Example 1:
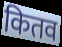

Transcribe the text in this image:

कितव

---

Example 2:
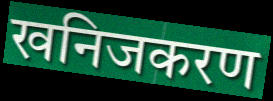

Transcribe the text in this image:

खनिजकरण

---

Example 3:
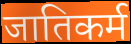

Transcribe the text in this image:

जातिकर्म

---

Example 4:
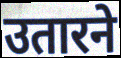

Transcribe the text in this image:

उतारने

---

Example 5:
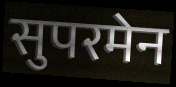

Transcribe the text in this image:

सुपरमेन